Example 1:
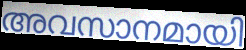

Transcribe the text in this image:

അവസാനമായി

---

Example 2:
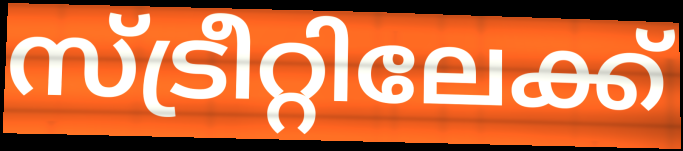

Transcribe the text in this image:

സ്ട്രീറ്റിലേക്ക്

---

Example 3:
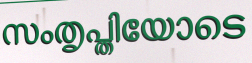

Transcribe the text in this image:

സംതൃപ്തിയോടെ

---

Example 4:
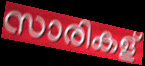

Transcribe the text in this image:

സാരികള്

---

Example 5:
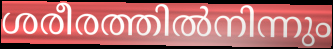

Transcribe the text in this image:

ശരീരത്തിൽനിന്നും